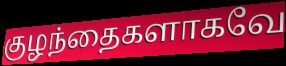
குழந்தைகளாகவே